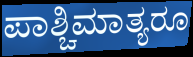
ಪಾಶ್ಚಿಮಾತ್ಯರೂ